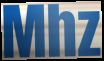
Mhz